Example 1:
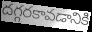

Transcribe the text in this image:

దగ్గరకావడానికి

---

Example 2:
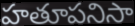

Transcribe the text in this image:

హతూపనిసా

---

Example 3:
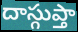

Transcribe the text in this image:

దాస్గుప్తా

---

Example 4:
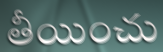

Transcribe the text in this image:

తీయించు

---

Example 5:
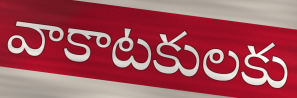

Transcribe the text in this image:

వాకాటకులకు